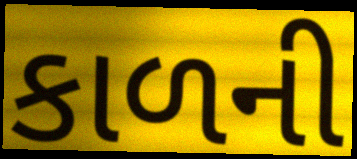
કાળની